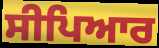
ਸੀਪਿਆਰ